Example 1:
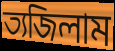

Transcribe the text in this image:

ত্যজিলাম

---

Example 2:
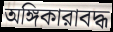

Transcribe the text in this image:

অঙ্গিকারাবদ্ধ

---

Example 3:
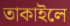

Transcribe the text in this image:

তাকাইলে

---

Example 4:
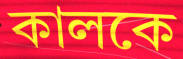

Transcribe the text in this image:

কালকে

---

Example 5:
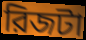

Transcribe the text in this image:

রিজটা